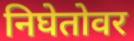
निघेतोवर